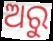
ଅରୁ